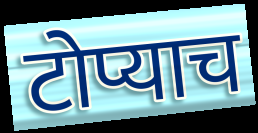
टोप्याच